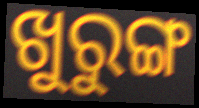
ଖୁରୁଙ୍ଗ